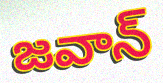
జవాన్